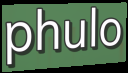
phulo